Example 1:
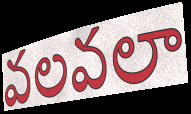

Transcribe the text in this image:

వలవలా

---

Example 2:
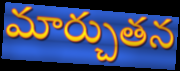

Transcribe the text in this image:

మార్చుతన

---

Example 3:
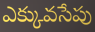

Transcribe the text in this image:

ఎక్కువసేపు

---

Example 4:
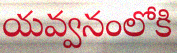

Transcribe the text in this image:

యవ్వనంలోకి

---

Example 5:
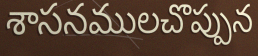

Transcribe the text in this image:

శాసనములచొప్పున